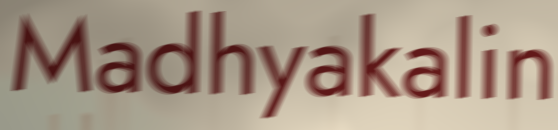
Madhyakalin